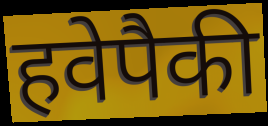
हवेपैकी